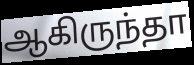
ஆகிருந்தா